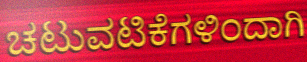
ಚಟುವಟಿಕೆಗಳಿಂದಾಗಿ